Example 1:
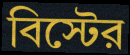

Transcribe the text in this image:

বিস্টের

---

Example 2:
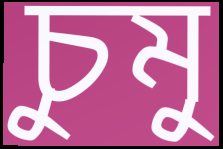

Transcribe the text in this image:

চুমু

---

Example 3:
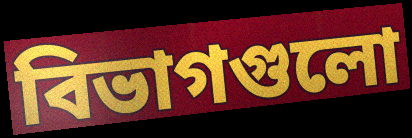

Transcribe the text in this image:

বিভাগগুলো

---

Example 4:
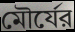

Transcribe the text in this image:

মৌর্যের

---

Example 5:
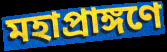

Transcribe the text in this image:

মহাপ্রাঙ্গণে